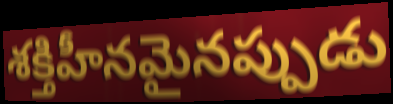
శక్తిహీనమైనప్పుడు